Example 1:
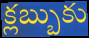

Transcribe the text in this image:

క్లబ్బుకు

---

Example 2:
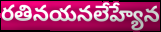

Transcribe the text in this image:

రతినయనలేహ్యేన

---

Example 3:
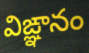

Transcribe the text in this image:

విఙ్ఞానం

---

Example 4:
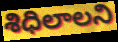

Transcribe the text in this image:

శిధిలాలని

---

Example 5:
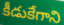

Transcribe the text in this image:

కీడుకేగాని